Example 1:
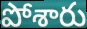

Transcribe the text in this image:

పోశారు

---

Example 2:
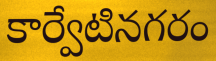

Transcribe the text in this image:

కార్వేటినగరం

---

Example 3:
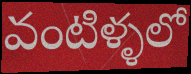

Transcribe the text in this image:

వంటిళ్ళలో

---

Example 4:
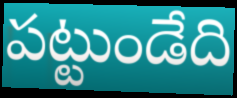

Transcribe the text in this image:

పట్టుండేది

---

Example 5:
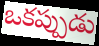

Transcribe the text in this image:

ఒకప్పుడు